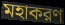
মহাকরণ